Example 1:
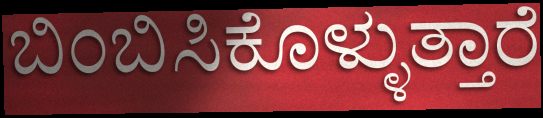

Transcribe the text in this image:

ಬಿಂಬಿಸಿಕೊಳ್ಳುತ್ತಾರೆ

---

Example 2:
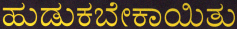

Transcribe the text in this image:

ಹುಡುಕಬೇಕಾಯಿತು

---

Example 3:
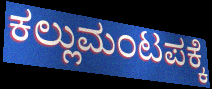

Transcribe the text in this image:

ಕಲ್ಲುಮಂಟಪಕ್ಕೆ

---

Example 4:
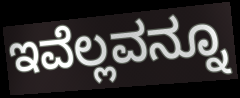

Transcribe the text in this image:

ಇವೆಲ್ಲವನ್ನೂ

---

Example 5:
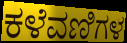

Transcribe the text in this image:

ಕಳೆವಣಿಗಳ